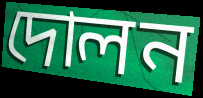
দোলন